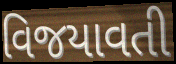
વિજયાવતી